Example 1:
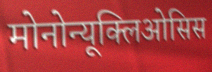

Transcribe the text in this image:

मोनोन्यूक्लिओसिस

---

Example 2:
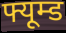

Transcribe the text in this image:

फ्यूम्ड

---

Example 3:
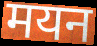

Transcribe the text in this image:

मयन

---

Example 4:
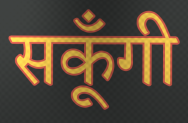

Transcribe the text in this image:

सकूँगी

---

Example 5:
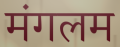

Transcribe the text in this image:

मंगलम